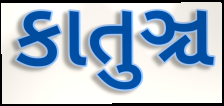
કાતુઞ્ચ